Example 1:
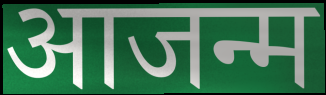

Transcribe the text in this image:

आजन्म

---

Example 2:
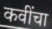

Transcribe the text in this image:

कवींचा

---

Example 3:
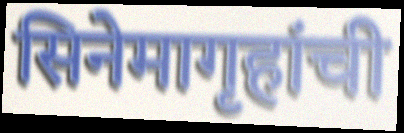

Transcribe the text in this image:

सिनेमागृहांची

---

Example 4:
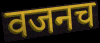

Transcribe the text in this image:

वजनच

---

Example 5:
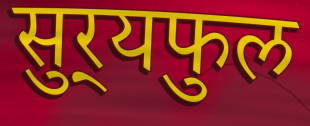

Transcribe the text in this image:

सुर्यफुल